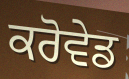
ਕਰੋਵੇਡ